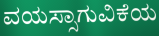
ವಯಸ್ಸಾಗುವಿಕೆಯ